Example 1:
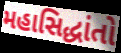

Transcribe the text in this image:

મહાસિદ્ધાંતો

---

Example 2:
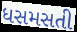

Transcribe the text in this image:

ધસમસતી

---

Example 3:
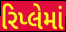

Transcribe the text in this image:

રિપ્લેમાં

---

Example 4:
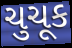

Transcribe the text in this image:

ચુચૂક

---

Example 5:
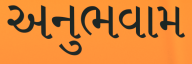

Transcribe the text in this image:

અનુભવામ